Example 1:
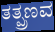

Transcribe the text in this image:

ತತ್ಪ್ರಣವ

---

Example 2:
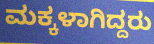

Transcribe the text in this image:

ಮಕ್ಕಳಾಗಿದ್ದರು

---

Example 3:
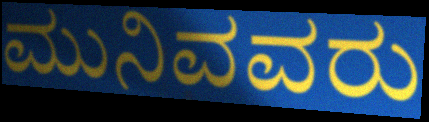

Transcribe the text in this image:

ಮುನಿವವರು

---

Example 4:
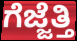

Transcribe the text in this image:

ಗೆಜ್ಜೆತ್ತಿ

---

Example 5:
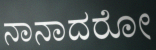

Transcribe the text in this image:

ನಾನಾದರೋ